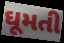
ઘૂમતી